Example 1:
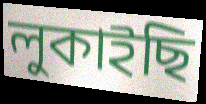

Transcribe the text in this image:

লুকাইছি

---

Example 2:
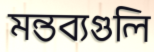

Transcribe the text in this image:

মন্তব্যগুলি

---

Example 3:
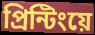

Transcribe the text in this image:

প্রিন্টিংয়ে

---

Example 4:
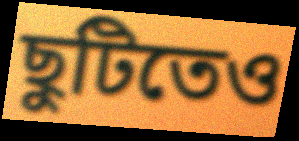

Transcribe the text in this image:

ছুটিতেও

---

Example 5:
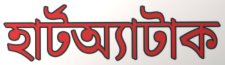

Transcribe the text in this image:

হার্টঅ্যাটাক